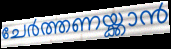
ചേർത്തണയ്ക്കാൻ